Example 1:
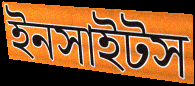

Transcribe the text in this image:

ইনসাইটস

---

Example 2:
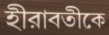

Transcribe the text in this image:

হীরাবতীকে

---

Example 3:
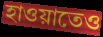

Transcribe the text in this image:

হাওয়াতেও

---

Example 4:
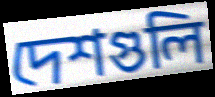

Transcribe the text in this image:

দেশগুলি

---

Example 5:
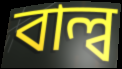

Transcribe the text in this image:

বাল্ব